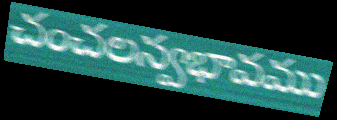
చంచలస్వభావము